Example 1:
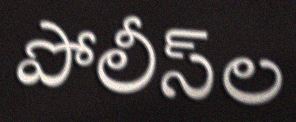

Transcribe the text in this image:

పోలీస్‌ల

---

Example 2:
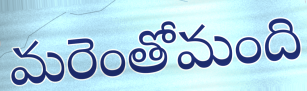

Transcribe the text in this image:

మరెంతోమంది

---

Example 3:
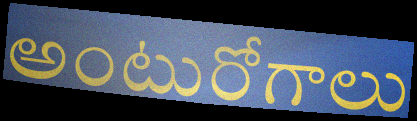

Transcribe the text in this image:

అంటురోగాలు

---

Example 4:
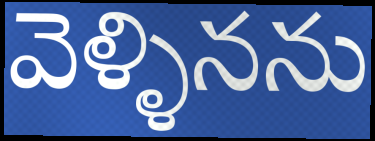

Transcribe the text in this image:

వెళ్ళినను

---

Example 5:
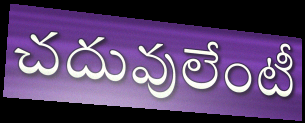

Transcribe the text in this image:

చదువులేంటీ